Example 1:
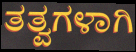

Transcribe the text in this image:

ತತ್ವಗಳಾಗಿ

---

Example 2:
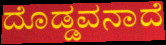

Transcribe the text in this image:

ದೊಡ್ಡವನಾದೆ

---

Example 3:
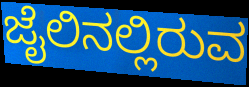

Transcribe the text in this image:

ಜೈಲಿನಲ್ಲಿರುವ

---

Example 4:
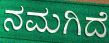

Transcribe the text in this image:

ನಮಗಿದೆ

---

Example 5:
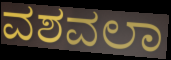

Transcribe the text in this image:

ವಶವಲಾ